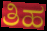
ತಿಹ